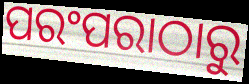
ପରଂପରାଠାରୁ